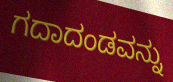
ಗದಾದಂಡವನ್ನು